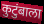
कुटुंबाला